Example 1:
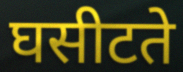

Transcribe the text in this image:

घसीटते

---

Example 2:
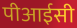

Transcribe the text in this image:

पीआईसी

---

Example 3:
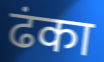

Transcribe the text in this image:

ढंका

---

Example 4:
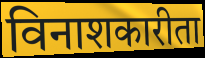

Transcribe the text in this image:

विनाशकारीता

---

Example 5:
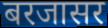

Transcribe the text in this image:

बरजासर